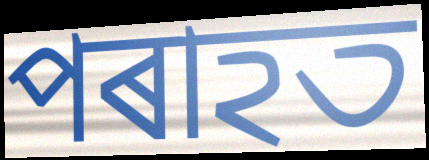
পৰাহত